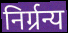
निर्ग्रन्य